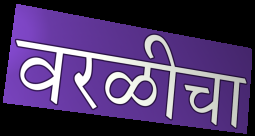
वरळीचा